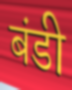
बंडी